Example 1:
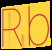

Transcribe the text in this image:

Rb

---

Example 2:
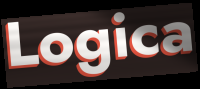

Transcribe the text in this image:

Logica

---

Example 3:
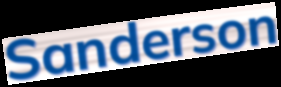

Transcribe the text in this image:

Sanderson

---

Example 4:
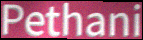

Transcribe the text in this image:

Pethani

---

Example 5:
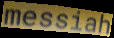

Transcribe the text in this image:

messiah